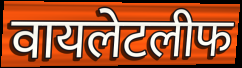
वायलेटलीफ